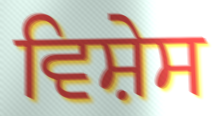
ਵਿਸ਼ੇਸ